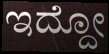
ಇದ್ದೋ